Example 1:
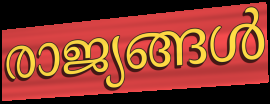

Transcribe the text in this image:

രാജ്യങ്ങൾ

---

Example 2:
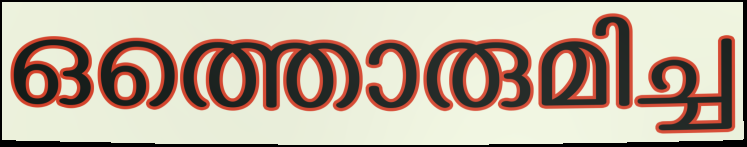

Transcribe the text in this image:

ഒത്തൊരുമിച്ച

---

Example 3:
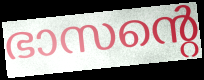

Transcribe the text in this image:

ഭാസന്റെ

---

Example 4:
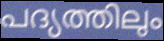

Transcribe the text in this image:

പദ്യത്തിലും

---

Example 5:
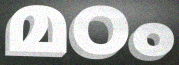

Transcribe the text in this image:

മഠം